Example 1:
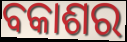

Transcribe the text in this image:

ବକାଶର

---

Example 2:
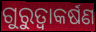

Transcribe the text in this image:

ଗୁରୁତ୍ଵାକର୍ଷଣ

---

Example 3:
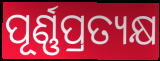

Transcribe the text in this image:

ପୂର୍ଣ୍ଣପ୍ରତ୍ୟକ୍ଷ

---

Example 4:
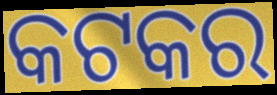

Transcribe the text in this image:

କଟକର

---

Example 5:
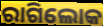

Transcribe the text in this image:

ରାଗିଲୋକ